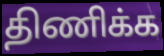
திணிக்க